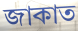
জাকাত